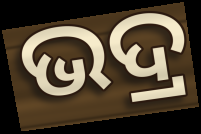
ଭଦ୍ର